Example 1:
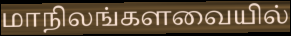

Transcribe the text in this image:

மாநிலங்களவையில்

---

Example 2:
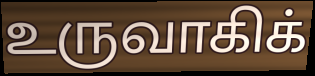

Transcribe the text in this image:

உருவாகிக்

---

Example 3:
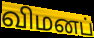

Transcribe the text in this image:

விமனப்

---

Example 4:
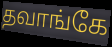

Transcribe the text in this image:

தவாங்கே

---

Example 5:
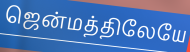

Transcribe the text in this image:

ஜென்மத்திலேயே